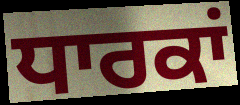
ਧਾਰਕਾਂ